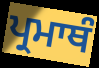
ਪ੍ਰਮਾਥੰ